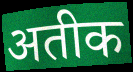
अतीक